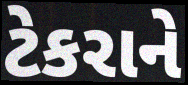
ટેકરાને